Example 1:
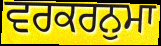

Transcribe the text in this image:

ਵਰਕਰਨੁਮਾ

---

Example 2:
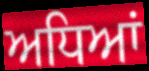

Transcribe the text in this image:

ਅਧਿਆਂ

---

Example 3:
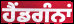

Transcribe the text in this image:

ਹੈਂਡਗੰਨਾਂ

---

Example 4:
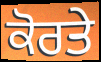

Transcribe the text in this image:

ਕੋਰਤੇ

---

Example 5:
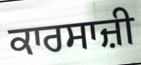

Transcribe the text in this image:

ਕਾਰਸਾਜ਼ੀ